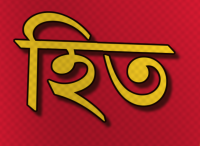
হিত